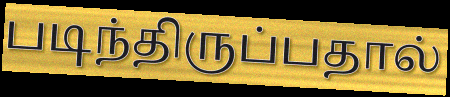
படிந்திருப்பதால்